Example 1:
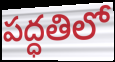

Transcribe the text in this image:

పద్ధతిలో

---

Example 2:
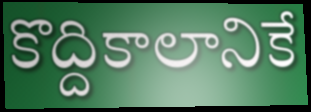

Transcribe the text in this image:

కొద్దికాలానికే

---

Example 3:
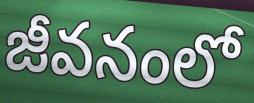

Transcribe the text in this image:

జీవనంలో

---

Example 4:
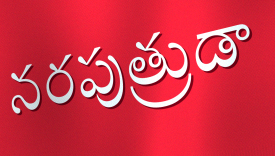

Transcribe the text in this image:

నరపుత్రుడా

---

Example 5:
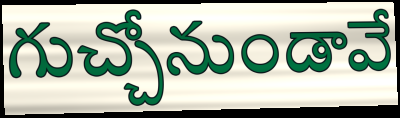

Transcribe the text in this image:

గుచ్చోనుండావే